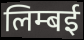
लिम्बई